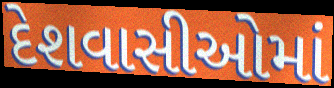
દેશવાસીઓમાં